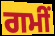
ਗਮੀਂ